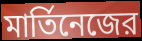
মার্তিনেজের